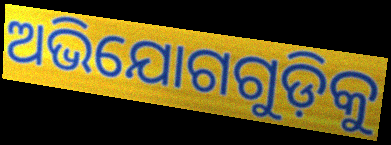
ଅଭିଯୋଗଗୁଡ଼ିକୁ